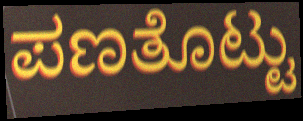
ಪಣತೊಟ್ಟು